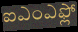
ఐఎంఎఫ్లో